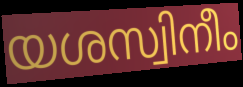
യശസ്വിനീം